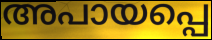
അപായപ്പെ